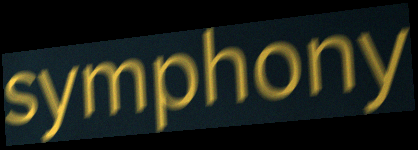
symphony